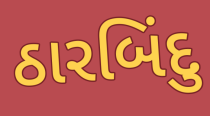
ઠારબિંદુ